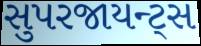
સુપરજાયન્ટ્સ